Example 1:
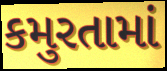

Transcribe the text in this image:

કમુરતામાં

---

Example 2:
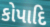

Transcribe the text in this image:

કોપાદિ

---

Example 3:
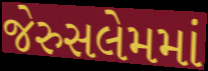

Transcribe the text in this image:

જેરુસલેમમાં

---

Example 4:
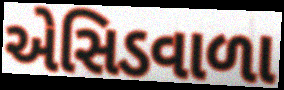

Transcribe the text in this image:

એસિડવાળા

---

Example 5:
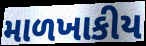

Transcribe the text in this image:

માળખાકીય